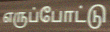
எருப்போட்டு